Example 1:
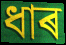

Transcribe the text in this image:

ধাৰ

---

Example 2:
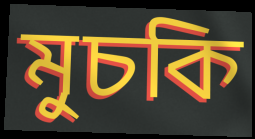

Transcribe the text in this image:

মুচকি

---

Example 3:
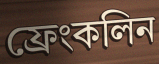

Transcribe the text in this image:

ফ্ৰেংকলিন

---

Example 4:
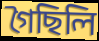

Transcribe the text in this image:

গৈছিলি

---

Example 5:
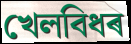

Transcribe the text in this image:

খেলবিধৰ